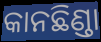
କାନଛିଣ୍ଡା